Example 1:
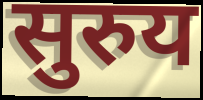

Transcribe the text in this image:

सुरुय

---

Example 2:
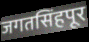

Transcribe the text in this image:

जगतसिंहपूर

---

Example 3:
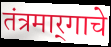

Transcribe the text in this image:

तंत्रमार्गाचे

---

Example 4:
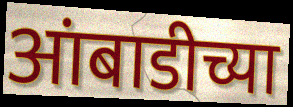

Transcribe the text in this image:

आंबाडीच्या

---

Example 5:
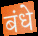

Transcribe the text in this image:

बंधे